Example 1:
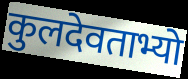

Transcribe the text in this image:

कुलदेवताभ्यो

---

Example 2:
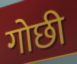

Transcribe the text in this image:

गोछी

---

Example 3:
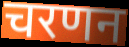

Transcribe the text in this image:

चरणन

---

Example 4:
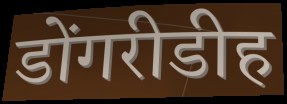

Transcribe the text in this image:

डोंगरीडीह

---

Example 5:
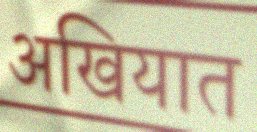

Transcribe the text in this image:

अखियात